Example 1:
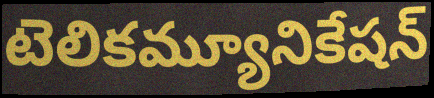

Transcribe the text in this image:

టెలికమ్యూనికేషన్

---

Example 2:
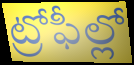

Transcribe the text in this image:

ట్రోఫీల్లో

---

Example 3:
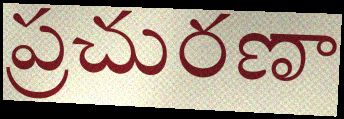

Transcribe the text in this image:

ప్రచురణా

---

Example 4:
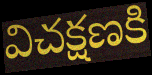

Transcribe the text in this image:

విచక్షణకి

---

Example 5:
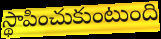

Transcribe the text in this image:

స్థాపించుకుంటుంది